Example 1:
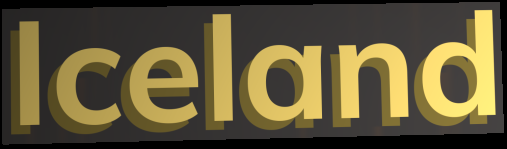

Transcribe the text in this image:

Iceland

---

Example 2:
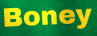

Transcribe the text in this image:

Boney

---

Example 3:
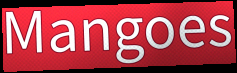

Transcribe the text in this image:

Mangoes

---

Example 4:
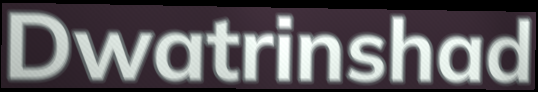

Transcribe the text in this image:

Dwatrinshad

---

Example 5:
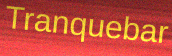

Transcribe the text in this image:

Tranquebar